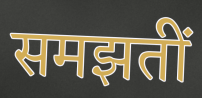
समझतीं